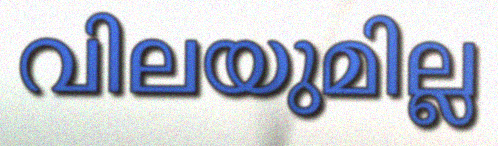
വിലയുമില്ല